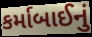
કર્માબાઈનું